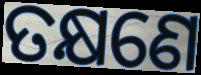
ତକ୍ଷଣେ